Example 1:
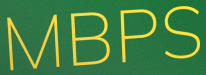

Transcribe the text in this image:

MBPS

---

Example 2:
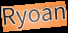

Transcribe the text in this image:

Ryoan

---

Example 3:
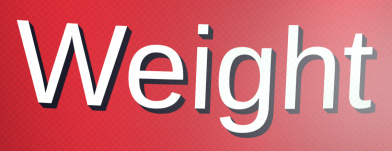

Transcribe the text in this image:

Weight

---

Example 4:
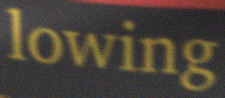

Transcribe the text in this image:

lowing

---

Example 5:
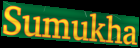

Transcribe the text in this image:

Sumukha